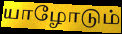
யாழோடும்